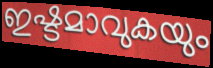
ഇഷ്ടമാവുകയും